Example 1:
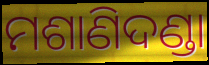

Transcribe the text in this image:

ମଶାଣିଦଣ୍ଡା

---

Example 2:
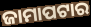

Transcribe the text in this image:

ଜାମାପଟାର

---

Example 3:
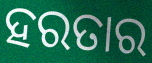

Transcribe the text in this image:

ହରତାର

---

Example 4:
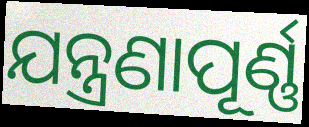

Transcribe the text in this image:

ଯନ୍ତ୍ରଣାପୂର୍ଣ୍ଣ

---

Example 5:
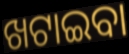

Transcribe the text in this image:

ଖଟାଇବା